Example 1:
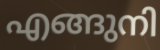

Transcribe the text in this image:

എങ്ങുനി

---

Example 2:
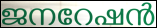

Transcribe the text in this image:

ജനറേഷൻ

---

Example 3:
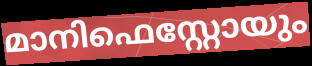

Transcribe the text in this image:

മാനിഫെസ്റ്റോയും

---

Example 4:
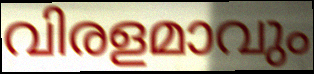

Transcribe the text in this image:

വിരളമാവും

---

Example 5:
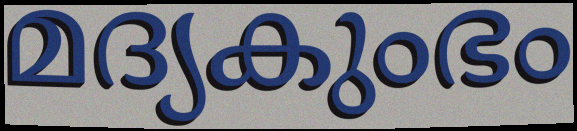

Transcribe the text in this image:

മദ്യകുംഭം